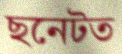
ছনেটত